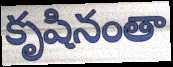
కృషినంతా